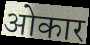
ओकार